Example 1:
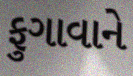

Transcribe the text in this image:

ફુગાવાને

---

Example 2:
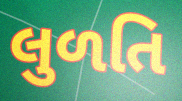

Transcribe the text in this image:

લુળતિ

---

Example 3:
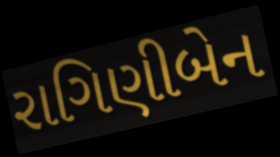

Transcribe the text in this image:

રાગિણીબેન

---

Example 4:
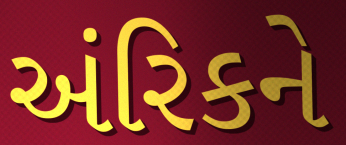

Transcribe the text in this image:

અંરિકને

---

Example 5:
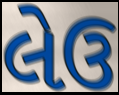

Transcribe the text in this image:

લેઉ